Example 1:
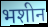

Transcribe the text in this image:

भशीन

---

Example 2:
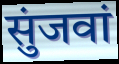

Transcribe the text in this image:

सुंजवां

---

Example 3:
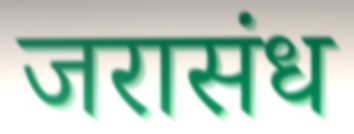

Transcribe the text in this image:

जरासंध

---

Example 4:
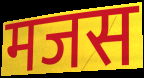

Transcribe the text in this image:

मजस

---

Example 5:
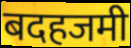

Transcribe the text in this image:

बदहजमी